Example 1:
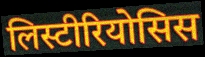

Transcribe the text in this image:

लिस्टीरियोसिस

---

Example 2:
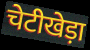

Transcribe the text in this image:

चेटीखेड़ा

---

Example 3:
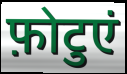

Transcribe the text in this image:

फ़ोटुएं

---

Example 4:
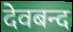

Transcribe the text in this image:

देवबन्द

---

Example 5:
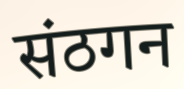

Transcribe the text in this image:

संठगन